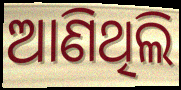
ଆଣିଥିଲି